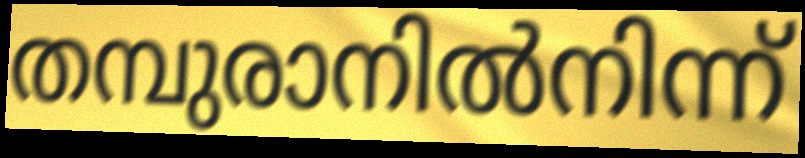
തമ്പുരാനിൽനിന്ന്